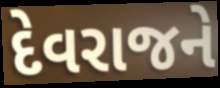
દેવરાજને